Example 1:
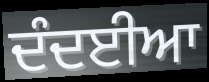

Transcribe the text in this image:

ਦੰਦਈਆ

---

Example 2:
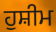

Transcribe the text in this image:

ਹੁਸ਼ੀਮ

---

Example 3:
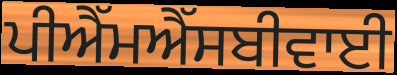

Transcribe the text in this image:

ਪੀਐੱਮਐੱਸਬੀਵਾਈ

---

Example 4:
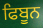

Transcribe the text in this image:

ਫਿਬੂਨ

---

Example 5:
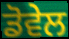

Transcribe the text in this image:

ਡੋਵੇਲ